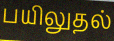
பயிலுதல்